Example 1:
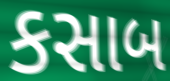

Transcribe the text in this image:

કસાબ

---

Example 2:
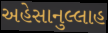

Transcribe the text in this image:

અહેસાનુલ્લાહ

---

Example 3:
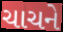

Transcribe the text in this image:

ચાચને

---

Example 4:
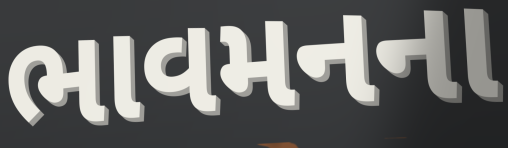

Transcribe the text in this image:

ભાવમનના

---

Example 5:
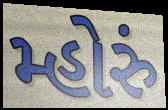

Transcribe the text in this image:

મ્હોરું